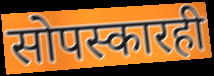
सोपस्कारही